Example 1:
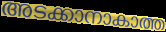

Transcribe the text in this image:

അടക്കാനാകാത്ത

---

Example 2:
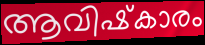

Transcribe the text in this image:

ആവിഷ്‌കാരം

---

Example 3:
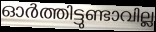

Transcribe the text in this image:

ഓർത്തിട്ടുണ്ടാവില്ല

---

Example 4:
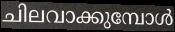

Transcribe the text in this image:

ചിലവാക്കുമ്പോൾ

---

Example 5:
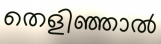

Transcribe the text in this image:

തെളിഞ്ഞാൽ